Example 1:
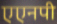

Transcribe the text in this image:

एएनपी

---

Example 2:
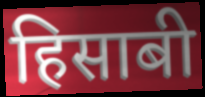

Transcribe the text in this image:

हिसाबी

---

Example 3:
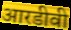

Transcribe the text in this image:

आरडीवी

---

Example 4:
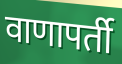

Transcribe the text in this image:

वाणापर्ती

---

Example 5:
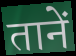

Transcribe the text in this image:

तानें